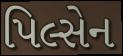
પિલ્સેન